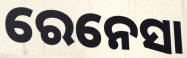
ରେନେସା